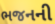
ભજનની